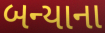
બન્યાના